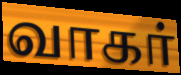
வாகர்